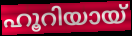
ഹൂറിയായ്